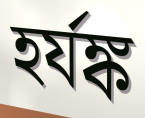
হর্যঙ্ক